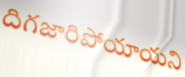
దిగజారిపోయాయని